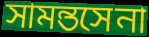
সামন্তসেনা